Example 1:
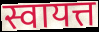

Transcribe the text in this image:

स्वायत्त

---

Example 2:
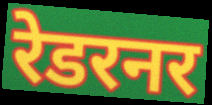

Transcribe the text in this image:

रेडरनर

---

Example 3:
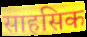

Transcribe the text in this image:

साहसिक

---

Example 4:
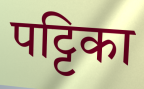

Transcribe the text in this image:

पट्टिका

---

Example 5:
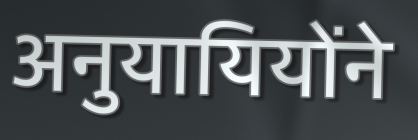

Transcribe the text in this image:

अनुयायियोंने